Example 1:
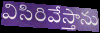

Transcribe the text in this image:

విసిరివేస్తాను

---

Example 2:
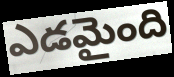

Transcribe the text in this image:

ఎడమైంది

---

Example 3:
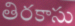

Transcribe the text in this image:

తిరకాసు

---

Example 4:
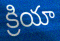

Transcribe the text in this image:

క్రియా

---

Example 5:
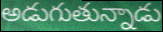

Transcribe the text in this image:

అడుగుతున్నాడు